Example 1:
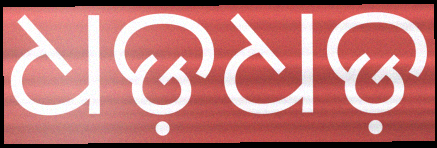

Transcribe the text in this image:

ଧଡ଼ଧଡ଼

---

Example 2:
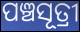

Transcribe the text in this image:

ପଞ୍ଚସୂତ୍ରୀ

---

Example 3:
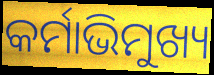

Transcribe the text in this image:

କର୍ମାଭିମୁଖ୍ୟ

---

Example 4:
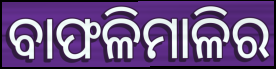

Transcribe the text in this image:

ବାଫଳିମାଳିର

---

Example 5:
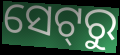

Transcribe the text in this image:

ସେଟ୍‌ରୁ